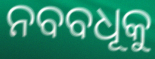
ନବବଧୂକୁ